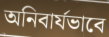
অনিবার্যভাবে